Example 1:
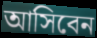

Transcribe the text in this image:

আসিবেন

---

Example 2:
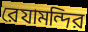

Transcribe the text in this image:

রেযামন্দির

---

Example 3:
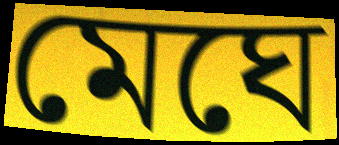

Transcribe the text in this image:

মেঘে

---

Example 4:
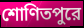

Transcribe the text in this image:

শোণিতপুরে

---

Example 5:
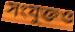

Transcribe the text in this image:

সংযুক্তও